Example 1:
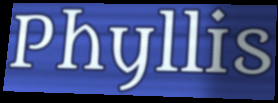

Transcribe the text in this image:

Phyllis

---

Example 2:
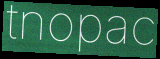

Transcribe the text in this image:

tnopac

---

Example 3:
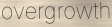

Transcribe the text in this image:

overgrowth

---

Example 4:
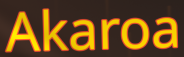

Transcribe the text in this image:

Akaroa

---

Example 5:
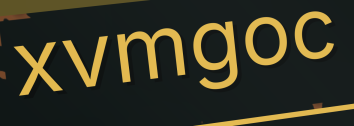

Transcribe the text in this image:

xvmgoc